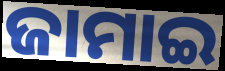
ଜାମାଇ